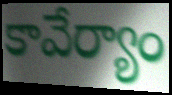
కావేర్యాం